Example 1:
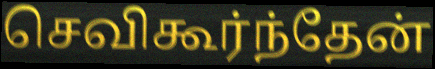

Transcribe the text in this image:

செவிகூர்ந்தேன்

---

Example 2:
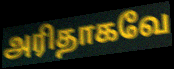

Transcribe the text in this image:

அரிதாகவே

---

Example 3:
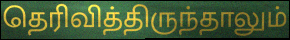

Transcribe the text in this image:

தெரிவித்திருந்தாலும்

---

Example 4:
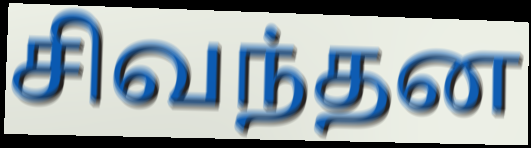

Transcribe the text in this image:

சிவந்தன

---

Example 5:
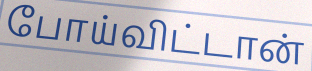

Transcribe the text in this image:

போய்விட்டான்